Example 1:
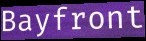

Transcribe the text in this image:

Bayfront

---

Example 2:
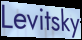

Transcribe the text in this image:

Levitsky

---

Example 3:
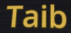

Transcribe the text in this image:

Taib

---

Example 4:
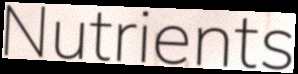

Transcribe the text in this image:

Nutrients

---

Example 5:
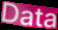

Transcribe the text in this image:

Data